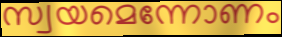
സ്വയമെന്നോണം